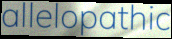
allelopathic